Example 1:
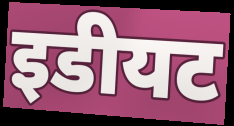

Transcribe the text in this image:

इडीयट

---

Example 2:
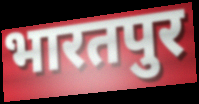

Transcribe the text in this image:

भारतपुर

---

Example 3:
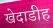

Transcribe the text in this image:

खेदाडीह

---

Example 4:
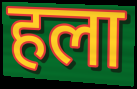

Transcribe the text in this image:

हला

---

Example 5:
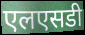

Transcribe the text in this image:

एलएसडी